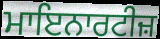
ਮਾਇਨਾਰਟੀਜ਼